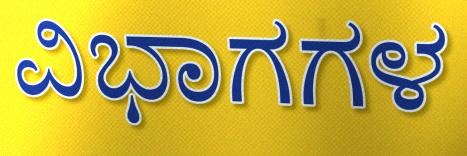
ವಿಭಾಗಗಳ